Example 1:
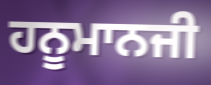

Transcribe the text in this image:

ਹਨੂਮਾਨਜੀ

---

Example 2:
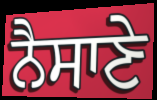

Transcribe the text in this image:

ਨੈਸਾਣੇ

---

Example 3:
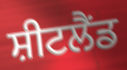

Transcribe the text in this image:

ਸ਼ੀਟਲੈਂਡ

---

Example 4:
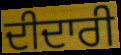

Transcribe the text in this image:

ਦੀਦਾਰੀ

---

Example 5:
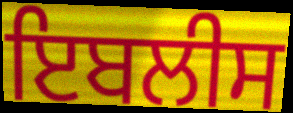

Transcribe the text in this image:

ਇਬਲੀਸ